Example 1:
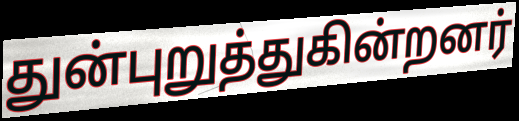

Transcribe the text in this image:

துன்புறுத்துகின்றனர்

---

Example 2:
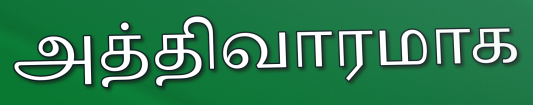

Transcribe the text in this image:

அத்திவாரமாக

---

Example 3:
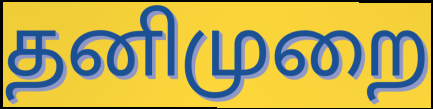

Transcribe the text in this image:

தனிமுறை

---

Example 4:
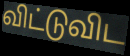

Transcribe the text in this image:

விட்டுவிட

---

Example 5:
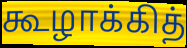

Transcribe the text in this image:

கூழாக்கித்